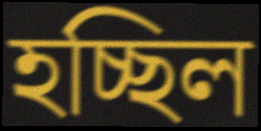
হচ্ছিল